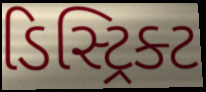
ડિસ્ટ્રિક્ટ